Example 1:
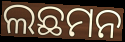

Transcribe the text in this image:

ଲଛମନ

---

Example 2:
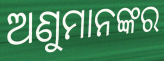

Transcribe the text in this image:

ଅଣୁମାନଙ୍କର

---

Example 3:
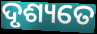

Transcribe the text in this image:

ଦୃଶ୍ୟତେ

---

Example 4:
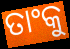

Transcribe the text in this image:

ତାଂକୁ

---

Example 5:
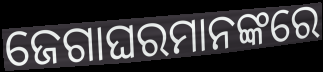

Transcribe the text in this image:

ଜେଗାଘରମାନଙ୍କରେ